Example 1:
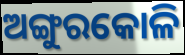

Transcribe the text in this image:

ଅଙ୍ଗୁରକୋଳି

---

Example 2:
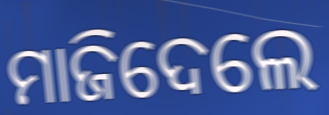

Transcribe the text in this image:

ମାଜିଦେଲେ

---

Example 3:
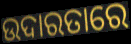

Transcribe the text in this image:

ଉଦାରତାରେ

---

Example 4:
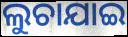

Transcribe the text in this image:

ଲୁଚାଯାଇ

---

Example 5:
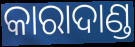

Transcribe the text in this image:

କାରାଦାଣ୍ଡ